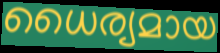
ധൈര്യമായ